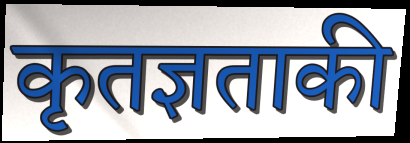
कृतज्ञताकी